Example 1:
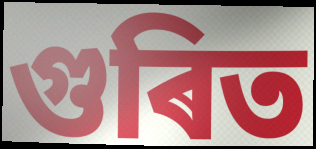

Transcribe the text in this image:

গুৰিত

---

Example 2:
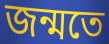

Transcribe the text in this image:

জন্মতে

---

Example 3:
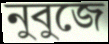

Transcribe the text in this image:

নুবুজে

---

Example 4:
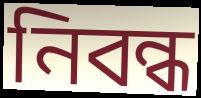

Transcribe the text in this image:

নিবন্ধ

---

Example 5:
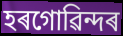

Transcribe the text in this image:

হৰগোৱিন্দৰ